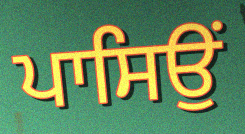
ਪਾਸਿਉਂ